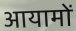
आयामों